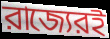
রাজ্যেরই